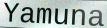
Yamuna